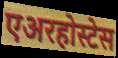
एअरहोस्टेस